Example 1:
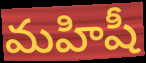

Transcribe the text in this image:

మహిషీ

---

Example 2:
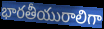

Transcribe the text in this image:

భారతీయురాలిగా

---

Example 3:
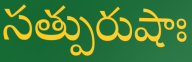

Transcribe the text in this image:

సత్పురుషాః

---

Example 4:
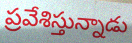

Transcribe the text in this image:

ప్రవేశిస్తున్నాడు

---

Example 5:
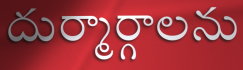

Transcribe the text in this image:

దుర్మార్గాలను